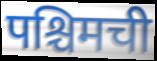
पश्चिमची